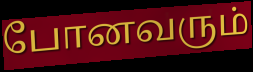
போனவரும்